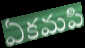
ఏకమపి